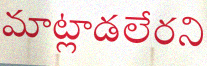
మాట్లాడలేరని